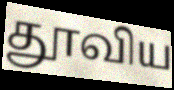
தூவிய